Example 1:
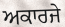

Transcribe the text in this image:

ਅਕਾਰਜੇ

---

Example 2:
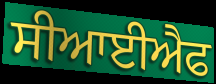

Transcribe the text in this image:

ਸੀਆਈਐਫ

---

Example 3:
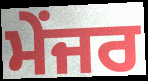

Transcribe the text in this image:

ਮੇਂਜਰ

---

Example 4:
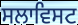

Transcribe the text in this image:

ਸਲਾਵਿਸਟ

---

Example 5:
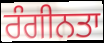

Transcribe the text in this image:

ਰੰਗੀਨਤਾ